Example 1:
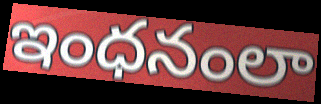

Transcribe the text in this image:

ఇంధనంలా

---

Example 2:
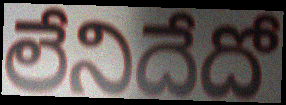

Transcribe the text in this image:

లేనిదేదో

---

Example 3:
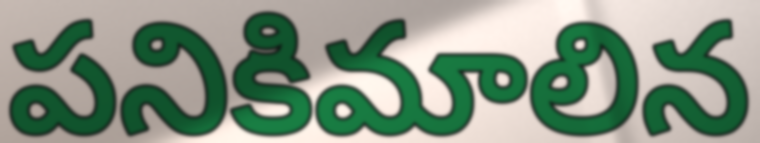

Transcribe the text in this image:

పనికిమాలిన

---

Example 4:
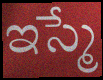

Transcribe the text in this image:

ఇస్మే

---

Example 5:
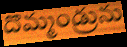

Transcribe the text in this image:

దొమ్మండ్రును